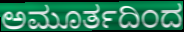
ಅಮೂರ್ತದಿಂದ